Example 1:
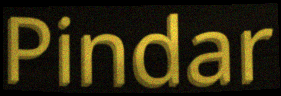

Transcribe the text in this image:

Pindar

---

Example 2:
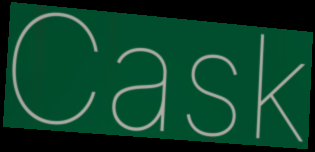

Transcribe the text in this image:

Cask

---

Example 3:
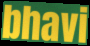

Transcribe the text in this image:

bhavi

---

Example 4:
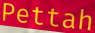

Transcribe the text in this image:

Pettah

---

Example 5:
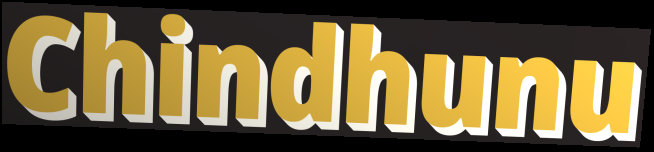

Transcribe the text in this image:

Chindhunu